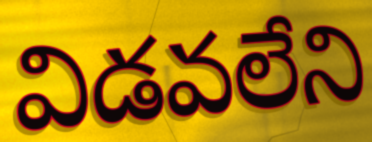
విడవలేని